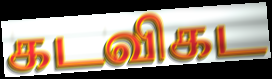
கடவிகட